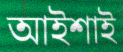
আইশাই